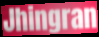
Jhingran